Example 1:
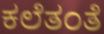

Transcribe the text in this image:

ಕಲೆತಂತೆ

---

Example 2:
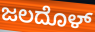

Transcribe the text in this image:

ಜಲದೊಳ್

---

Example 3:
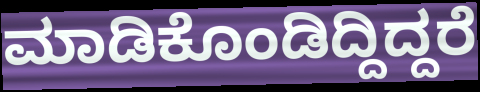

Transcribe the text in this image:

ಮಾಡಿಕೊಂಡಿದ್ದಿದ್ದರೆ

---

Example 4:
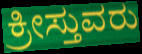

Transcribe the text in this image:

ಕ್ರೀಸ್ತುವರು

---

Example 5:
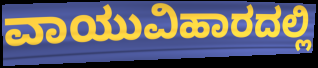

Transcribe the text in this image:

ವಾಯುವಿಹಾರದಲ್ಲಿ